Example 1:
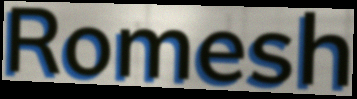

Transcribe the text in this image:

Romesh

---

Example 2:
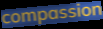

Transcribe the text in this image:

compassion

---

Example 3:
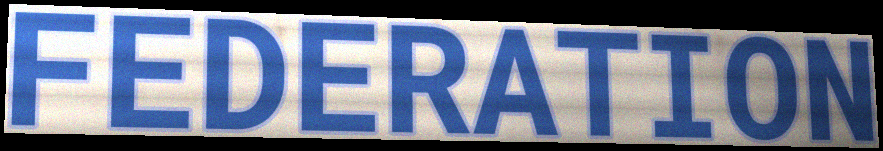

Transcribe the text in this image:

FEDERATION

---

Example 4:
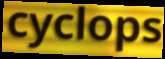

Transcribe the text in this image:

cyclops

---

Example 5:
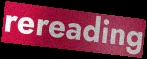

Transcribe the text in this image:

rereading